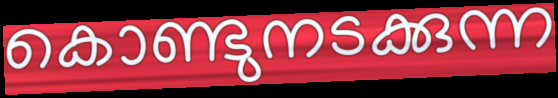
കൊണ്ടുനടക്കുന്ന